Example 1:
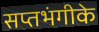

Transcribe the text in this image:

सप्तभंगीके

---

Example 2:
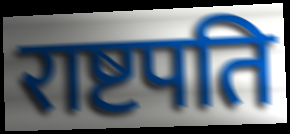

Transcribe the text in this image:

राष्टपति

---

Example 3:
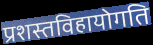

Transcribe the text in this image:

प्रशस्तविहायोगति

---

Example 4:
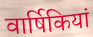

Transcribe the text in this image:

वार्षिकियां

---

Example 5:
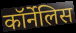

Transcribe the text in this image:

कॉर्नेलिस